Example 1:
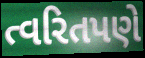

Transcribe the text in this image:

ત્વરિતપણે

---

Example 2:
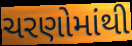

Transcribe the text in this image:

ચરણોમાંથી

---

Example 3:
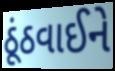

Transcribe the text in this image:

ઠૂંઠવાઈને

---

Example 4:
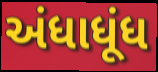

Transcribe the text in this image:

અંધાધૂંધ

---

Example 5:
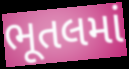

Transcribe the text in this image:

ભૂતલમાં